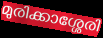
മുരിക്കാശ്ശേരി